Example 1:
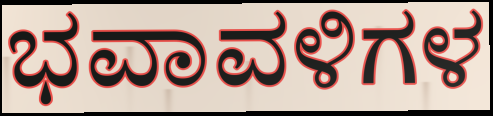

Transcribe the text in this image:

ಭವಾವಳಿಗಳ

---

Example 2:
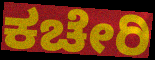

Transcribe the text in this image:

ಕಚೇರಿ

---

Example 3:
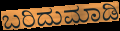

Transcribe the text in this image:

ಬರಿದುಮಾಡಿ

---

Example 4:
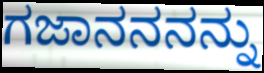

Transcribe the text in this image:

ಗಜಾನನನನ್ನು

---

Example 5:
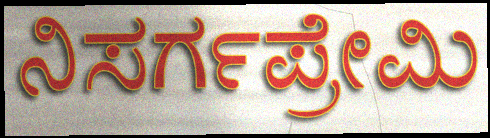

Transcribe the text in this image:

ನಿಸರ್ಗಪ್ರೇಮಿ